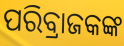
ପରିବ୍ରାଜକଙ୍କ